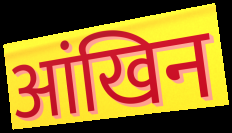
आंखिन